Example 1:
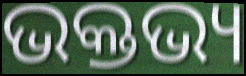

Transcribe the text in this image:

ଭକ୍ତଭ୍ୟ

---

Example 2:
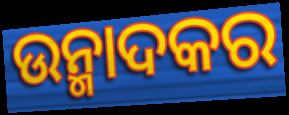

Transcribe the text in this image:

ଉନ୍ମାଦକର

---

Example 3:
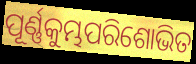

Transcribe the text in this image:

ପୂର୍ଣ୍ଣକୁମ୍ଭପରିଶୋଭିତ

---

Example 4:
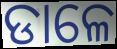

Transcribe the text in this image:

ଡାଳେ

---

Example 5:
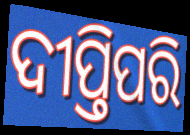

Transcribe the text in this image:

ଦୀପ୍ତିପରି